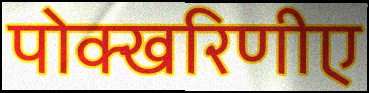
पोक्खरिणीए